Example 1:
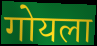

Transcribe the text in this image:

गोयला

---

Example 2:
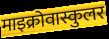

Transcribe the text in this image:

माइक्रोवास्कुलर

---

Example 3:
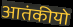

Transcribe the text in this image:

आतंकीयो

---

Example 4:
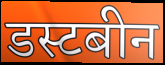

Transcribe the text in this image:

डस्टबीन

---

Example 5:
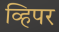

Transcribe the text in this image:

व्हिपर